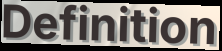
Definition